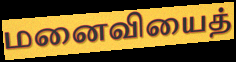
மனைவியைத்